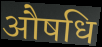
औषधि